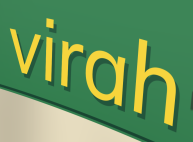
virah